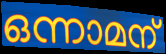
ഒന്നാമന്